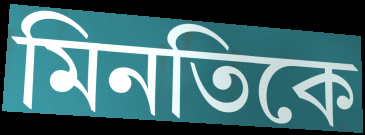
মিনতিকে